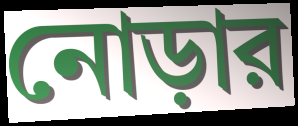
নোড়ার